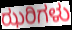
ಝರಿಗಳು